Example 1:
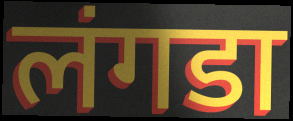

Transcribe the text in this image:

लंगडा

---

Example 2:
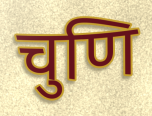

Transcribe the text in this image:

चुणि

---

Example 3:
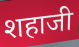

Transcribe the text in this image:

शहाजी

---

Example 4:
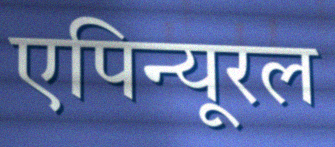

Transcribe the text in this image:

एपिन्यूरल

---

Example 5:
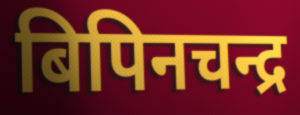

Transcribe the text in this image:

बिपिनचन्द्र